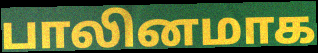
பாலினமாக